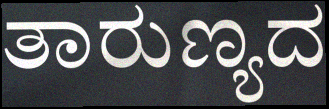
ತಾರುಣ್ಯದ